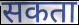
सकता